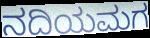
ನದಿಯಮಗ